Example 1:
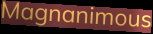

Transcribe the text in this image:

Magnanimous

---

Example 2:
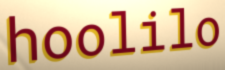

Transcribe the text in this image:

hoolilo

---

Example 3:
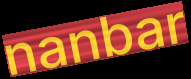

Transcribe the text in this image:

nanbar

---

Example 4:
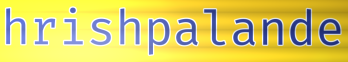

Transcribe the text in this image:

hrishpalande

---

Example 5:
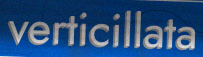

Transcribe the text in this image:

verticillata